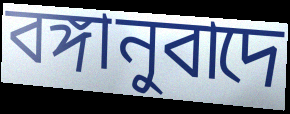
বঙ্গানুবাদে